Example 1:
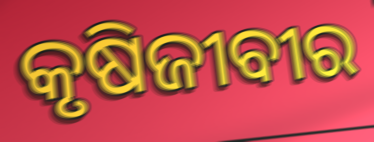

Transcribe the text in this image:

କୃଷିଜୀବୀର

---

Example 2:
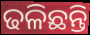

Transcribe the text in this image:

ଢଳିଛନ୍ତି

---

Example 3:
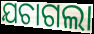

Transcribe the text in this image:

ଯଚାଗଲା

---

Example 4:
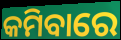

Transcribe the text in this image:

କମିବାରେ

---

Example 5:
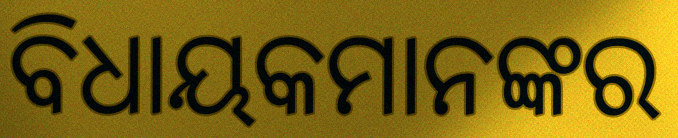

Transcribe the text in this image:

ବିଧାୟକମାନଙ୍କର